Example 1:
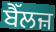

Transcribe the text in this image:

ਬੈੱਲਜ਼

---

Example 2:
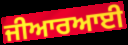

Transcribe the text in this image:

ਜੀਆਰਆਈ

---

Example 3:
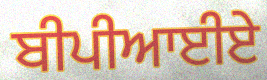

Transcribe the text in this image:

ਬੀਪੀਆਈਏ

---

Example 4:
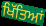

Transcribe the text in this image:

ਖਿੱਤਿਆਂ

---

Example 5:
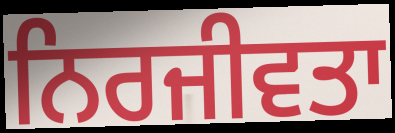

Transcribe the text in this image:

ਨਿਰਜੀਵਤਾ